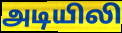
அடியிலி